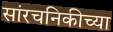
सांरचनिकीच्या